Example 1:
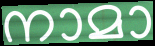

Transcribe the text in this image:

നാമാ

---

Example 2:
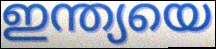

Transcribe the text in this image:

ഇന്ത്യയെ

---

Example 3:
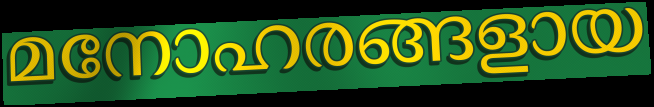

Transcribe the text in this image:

മനോഹരങ്ങളായ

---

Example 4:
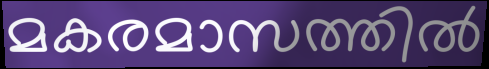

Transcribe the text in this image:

മകരമാസത്തിൽ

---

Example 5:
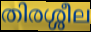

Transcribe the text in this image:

തിരശ്ശീല